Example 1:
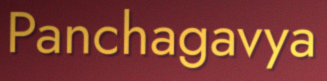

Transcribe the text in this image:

Panchagavya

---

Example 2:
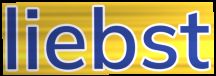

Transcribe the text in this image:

liebst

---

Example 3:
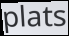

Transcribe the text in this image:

plats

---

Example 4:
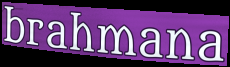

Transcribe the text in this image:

brahmana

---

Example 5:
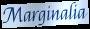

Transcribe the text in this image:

Marginalia